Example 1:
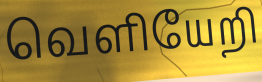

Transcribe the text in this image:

வெளியேறி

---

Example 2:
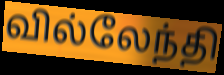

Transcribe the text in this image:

வில்லேந்தி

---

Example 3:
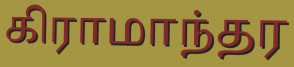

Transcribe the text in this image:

கிராமாந்தர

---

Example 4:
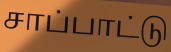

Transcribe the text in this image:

சாப்பாட்டு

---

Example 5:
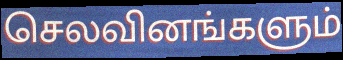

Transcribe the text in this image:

செலவினங்களும்